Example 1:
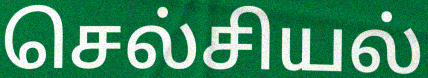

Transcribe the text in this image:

செல்சியல்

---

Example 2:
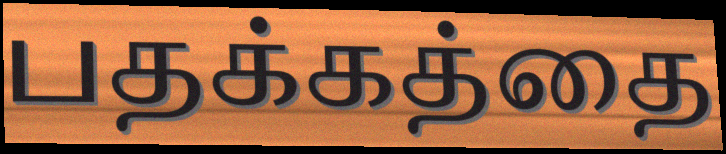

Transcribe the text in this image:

பதக்கத்தை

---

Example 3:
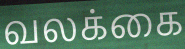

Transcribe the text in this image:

வலக்கை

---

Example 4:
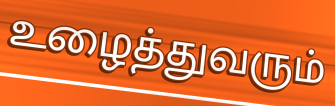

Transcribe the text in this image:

உழைத்துவரும்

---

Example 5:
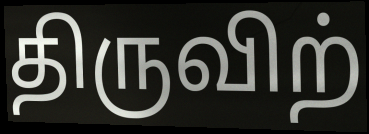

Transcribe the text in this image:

திருவிற்